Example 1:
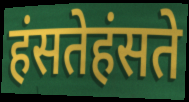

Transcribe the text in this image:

हंसतेहंसते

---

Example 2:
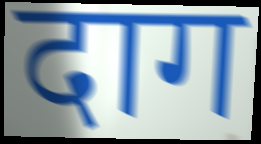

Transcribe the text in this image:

दाग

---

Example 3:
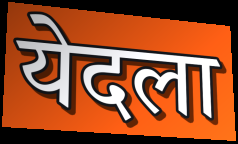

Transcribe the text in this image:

येदला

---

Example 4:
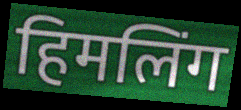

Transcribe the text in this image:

हिमलिंग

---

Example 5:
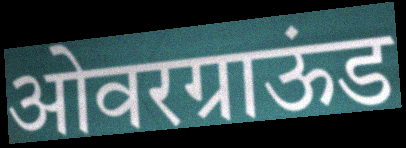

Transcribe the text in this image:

ओवरग्राऊंड